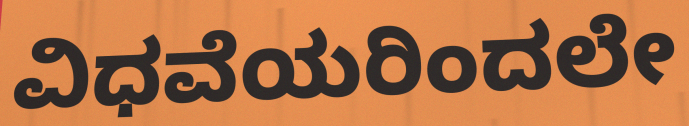
ವಿಧವೆಯರಿಂದಲೇ